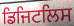
ਡਿਜਿਟਲਿਸ